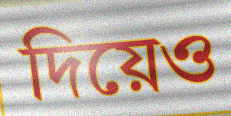
দিয়েও